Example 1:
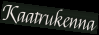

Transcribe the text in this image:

Kaatrukenna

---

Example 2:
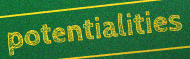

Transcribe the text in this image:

potentialities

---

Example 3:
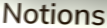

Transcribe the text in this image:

Notions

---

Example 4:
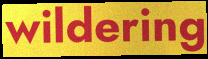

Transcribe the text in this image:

wildering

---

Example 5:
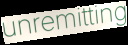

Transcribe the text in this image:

unremitting